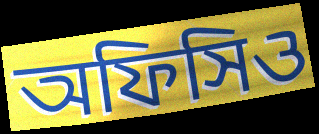
অফিসিও